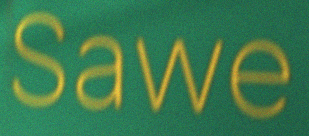
Sawe